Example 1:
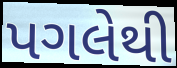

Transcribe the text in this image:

પગલેથી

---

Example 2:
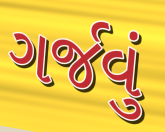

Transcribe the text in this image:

ગર્જવું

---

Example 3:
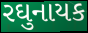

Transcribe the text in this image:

રઘુનાયક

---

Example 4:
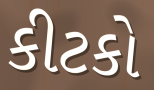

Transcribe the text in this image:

કીટકો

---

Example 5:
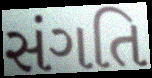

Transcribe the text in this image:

સંગતિ